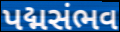
પદ્મસંભવ